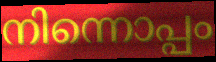
നിന്നൊപ്പം